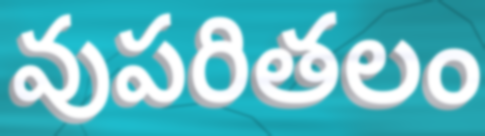
వుపరితలం